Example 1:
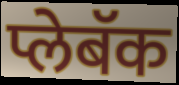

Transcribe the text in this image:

प्लेबॅक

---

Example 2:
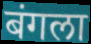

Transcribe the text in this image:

बंगला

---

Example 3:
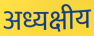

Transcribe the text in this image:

अध्यक्षीय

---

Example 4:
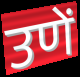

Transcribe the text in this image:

उणें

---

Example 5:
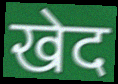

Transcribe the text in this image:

खेद